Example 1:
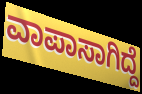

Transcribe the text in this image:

ವಾಪಾಸಾಗಿದ್ದೆ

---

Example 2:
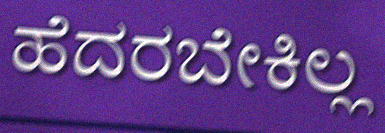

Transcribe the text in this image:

ಹೆದರಬೇಕಿಲ್ಲ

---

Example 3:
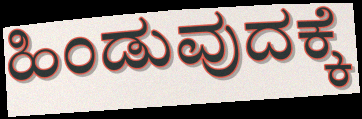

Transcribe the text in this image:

ಹಿಂಡುವುದಕ್ಕೆ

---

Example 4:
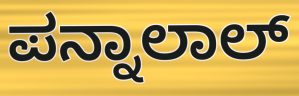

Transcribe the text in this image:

ಪನ್ನಾಲಾಲ್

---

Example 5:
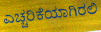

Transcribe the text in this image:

ಎಚ್ಚರಿಕೆಯಾಗಿರಲಿ